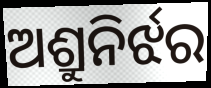
ଅଶ୍ରୁନିର୍ଝର